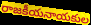
రాజకీయనాయకుల